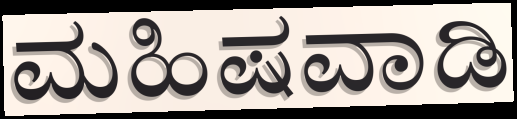
ಮಹಿಷವಾಡಿ